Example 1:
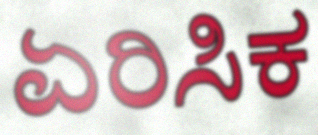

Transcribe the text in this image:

ಏರಿಸಿಕ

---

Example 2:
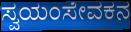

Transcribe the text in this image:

ಸ್ವಯಂಸೇವಕನ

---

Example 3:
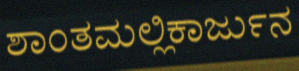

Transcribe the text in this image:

ಶಾಂತಮಲ್ಲಿಕಾರ್ಜುನ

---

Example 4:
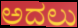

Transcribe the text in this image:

ಅದಲು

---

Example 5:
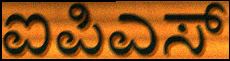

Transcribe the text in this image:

ಐಪಿಎಸ್